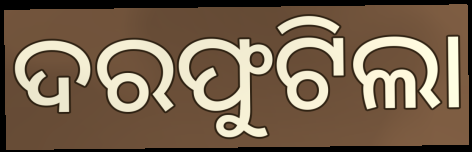
ଦରଫୁଟିଲା